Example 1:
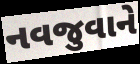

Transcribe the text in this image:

નવજુવાને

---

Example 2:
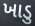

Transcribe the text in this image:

ખાડુ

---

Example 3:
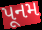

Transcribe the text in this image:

પૂનમ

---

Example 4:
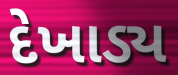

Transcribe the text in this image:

દેખાડ્ય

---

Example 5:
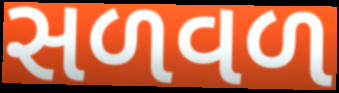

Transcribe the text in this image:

સળવળ